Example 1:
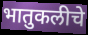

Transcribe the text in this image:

भातुकलीचे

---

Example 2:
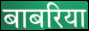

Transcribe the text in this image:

बाबरिया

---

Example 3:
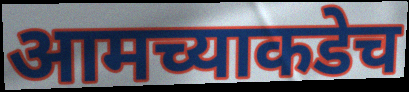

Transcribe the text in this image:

आमच्याकडेच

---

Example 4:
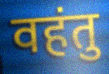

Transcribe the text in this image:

वहंतु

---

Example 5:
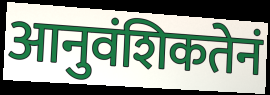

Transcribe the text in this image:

आनुवंशिकतेनं